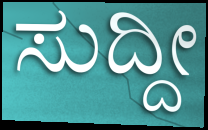
ಸುದ್ದೀ